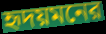
হৃদয়মনের